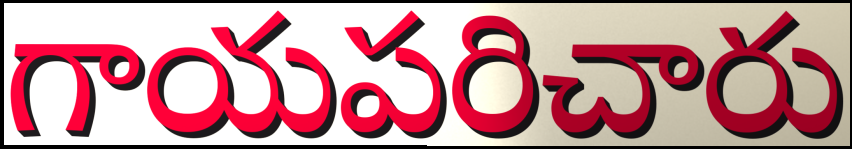
గాయపరిచారు